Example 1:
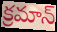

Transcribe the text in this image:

క్రమాన్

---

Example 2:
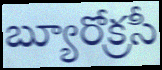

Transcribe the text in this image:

బ్యూరోక్రసీ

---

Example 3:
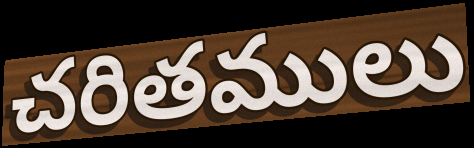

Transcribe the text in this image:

చరితములు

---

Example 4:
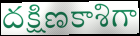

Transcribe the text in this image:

దక్షిణకాశిగా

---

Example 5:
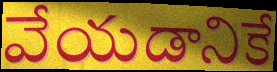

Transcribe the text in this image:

వేయడానికే